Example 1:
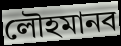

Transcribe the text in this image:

লৌহমানব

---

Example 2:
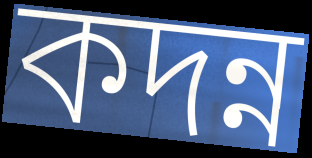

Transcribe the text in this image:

কদন্ন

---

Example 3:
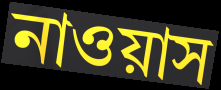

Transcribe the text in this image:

নাওয়াস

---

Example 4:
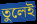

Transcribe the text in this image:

তুলেই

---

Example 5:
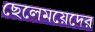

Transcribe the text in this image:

ছেলেময়েদের